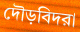
দৌড়বিদরা